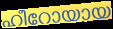
ഹീറോയായ